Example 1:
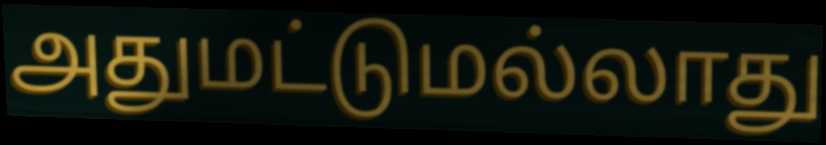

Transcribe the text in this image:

அதுமட்டுமல்லாது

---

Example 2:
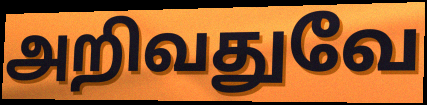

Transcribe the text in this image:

அறிவதுவே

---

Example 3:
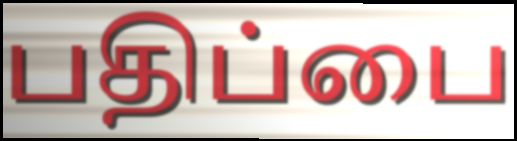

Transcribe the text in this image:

பதிப்பை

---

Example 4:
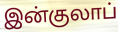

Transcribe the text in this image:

இன்குலாப்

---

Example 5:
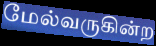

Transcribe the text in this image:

மேல்வருகின்ற